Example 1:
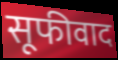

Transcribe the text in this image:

सूफीवाद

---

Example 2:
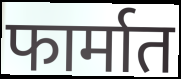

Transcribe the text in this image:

फार्मात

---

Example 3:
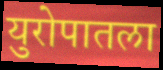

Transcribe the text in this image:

युरोपातला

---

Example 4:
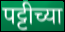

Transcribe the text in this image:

पट्टीच्या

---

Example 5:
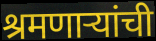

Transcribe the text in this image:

श्रमणाऱ्यांची